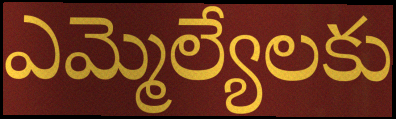
ఎమ్మెల్యేలకు